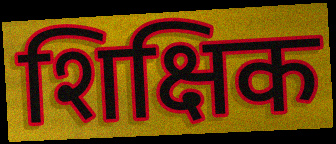
शिक्षिक